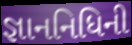
જ્ઞાનનિધિની